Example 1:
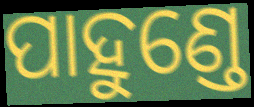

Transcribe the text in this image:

ପାହୁଣ୍ଡେ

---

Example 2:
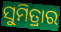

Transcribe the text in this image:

ସୁମିତ୍ରାର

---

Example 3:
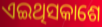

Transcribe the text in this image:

ଏଇଥିସକାଶେ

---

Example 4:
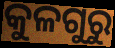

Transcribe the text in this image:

କୁଳଗୁରୁ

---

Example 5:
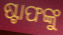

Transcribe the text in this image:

ଷ୍ଟାଫଙ୍କୁ